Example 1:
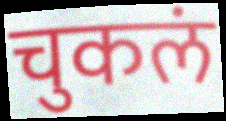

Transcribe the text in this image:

चुकलं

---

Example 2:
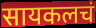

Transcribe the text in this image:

सायकलचं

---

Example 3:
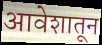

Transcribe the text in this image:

आवेशातून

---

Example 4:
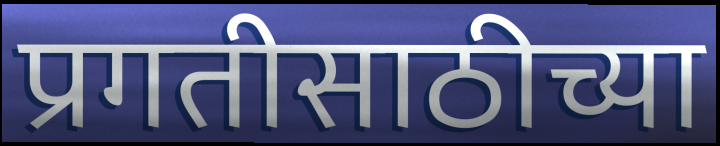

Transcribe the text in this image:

प्रगतीसाठीच्या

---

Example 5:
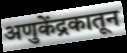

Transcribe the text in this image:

अणुकेंद्रकातून